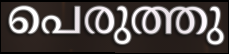
പെരുത്തു